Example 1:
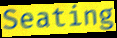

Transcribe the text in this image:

Seating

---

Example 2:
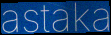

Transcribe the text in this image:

astaka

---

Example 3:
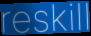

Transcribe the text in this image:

reskill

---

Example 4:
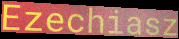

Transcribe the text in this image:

Ezechiasz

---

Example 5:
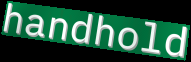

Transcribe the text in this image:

handhold